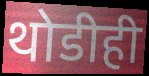
थोडीही